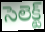
సెలెక్ట్